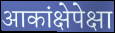
आकांक्षेपेक्षा